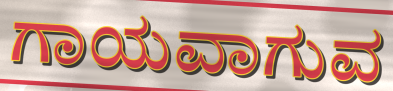
ಗಾಯವಾಗುವ